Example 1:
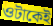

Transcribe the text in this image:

ওটাকেই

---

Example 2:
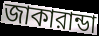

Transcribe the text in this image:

জাকারান্ডা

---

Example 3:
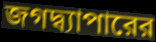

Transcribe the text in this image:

জগদ্ব্যাপারের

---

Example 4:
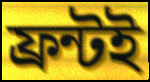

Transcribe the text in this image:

ফ্রন্টই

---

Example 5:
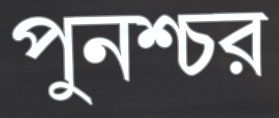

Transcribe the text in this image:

পুনশ্চর